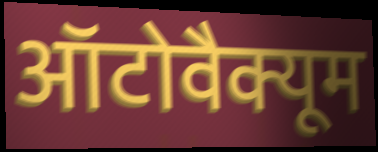
ऑटोवैक्यूम